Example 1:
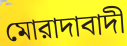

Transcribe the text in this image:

মোরাদাবাদী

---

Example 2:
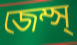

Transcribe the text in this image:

জেম্স্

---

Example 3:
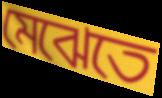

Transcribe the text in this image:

মেঝেতে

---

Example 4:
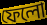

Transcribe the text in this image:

ফেলো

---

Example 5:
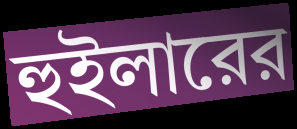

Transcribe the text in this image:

হুইলারের